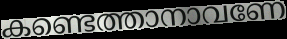
കണ്ടെത്താനാവണേ